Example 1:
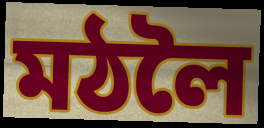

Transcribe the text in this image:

মঠলৈ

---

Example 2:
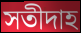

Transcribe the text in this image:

সতীদাহ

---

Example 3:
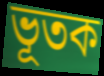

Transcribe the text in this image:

ভূতক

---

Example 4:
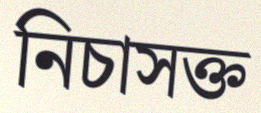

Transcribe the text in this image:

নিচাসক্ত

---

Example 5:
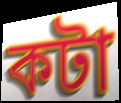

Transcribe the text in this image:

কটা